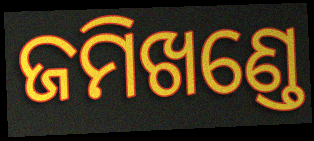
ଜମିଖଣ୍ଡେ